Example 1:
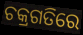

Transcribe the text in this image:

ଚକ୍ରଗତିରେ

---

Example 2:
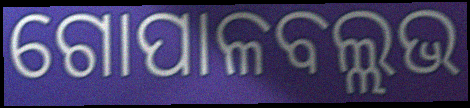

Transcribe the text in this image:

ଗୋପାଳବଲ୍ଲଭ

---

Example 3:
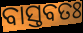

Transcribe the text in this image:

ବାସ୍ତବତଃ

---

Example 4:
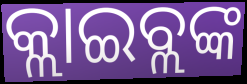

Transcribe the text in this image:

କ୍ଲାଇବ୍ଲଙ୍କ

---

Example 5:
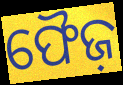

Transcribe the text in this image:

ଫୈଜ଼